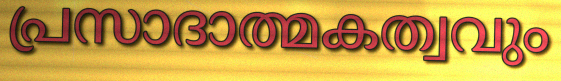
പ്രസാദാത്മകത്വവും